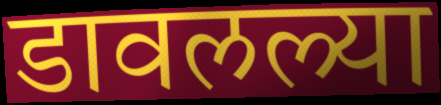
डावलल्या